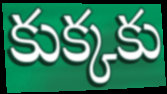
కుక్కకు